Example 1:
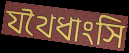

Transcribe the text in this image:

যথৈধাংসি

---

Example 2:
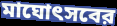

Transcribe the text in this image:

মাঘোৎসবের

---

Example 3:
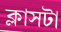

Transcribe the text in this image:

ক্লাসটা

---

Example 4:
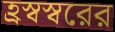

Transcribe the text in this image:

হ্রস্বস্বরের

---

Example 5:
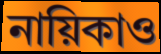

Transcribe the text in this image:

নায়িকাও